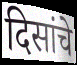
दिसांचे